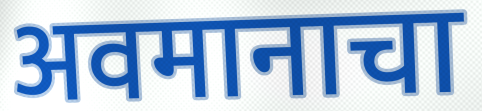
अवमानाचा